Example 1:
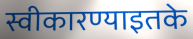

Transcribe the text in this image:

स्वीकारण्याइतके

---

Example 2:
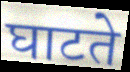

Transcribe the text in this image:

घाटते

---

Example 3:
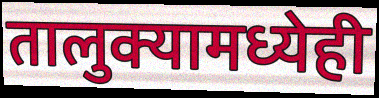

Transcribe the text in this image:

तालुक्यामध्येही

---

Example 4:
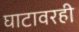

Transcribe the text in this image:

घाटावरही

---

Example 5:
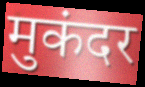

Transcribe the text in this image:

मुकंदर